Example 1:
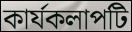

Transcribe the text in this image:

কার্যকলাপটি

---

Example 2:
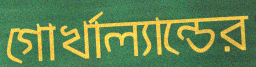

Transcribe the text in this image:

গোর্খাল্যান্ডের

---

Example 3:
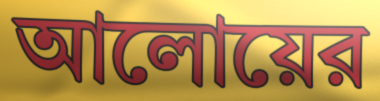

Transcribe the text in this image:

আলোয়ের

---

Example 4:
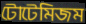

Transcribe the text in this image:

টোটেমিজম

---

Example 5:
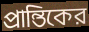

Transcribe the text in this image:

প্রান্তিকের